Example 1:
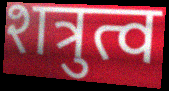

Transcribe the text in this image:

शत्रुत्व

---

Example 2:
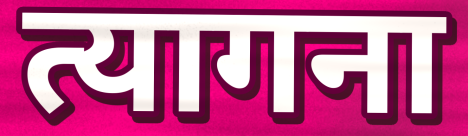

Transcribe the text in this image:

त्यागना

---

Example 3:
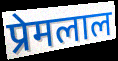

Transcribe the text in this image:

प्रेमलाल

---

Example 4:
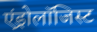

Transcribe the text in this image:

एंड्रोलॉजिस्ट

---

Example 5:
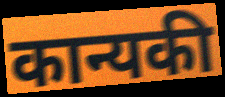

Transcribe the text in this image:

कान्यकी